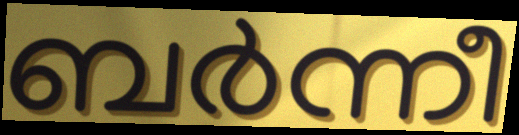
ബർന്നീ